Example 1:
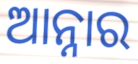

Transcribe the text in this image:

ଆନ୍ନାର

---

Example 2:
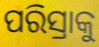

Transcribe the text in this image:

ପରିସ୍ରାକୁ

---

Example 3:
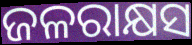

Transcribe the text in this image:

ଜଳରାକ୍ଷସ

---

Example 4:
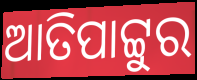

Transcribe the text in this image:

ଆତିପାଟ୍ଟୁର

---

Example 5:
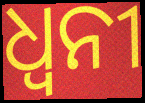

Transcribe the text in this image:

ଧ୍ୱନୀ